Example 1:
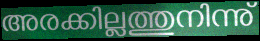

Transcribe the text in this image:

അരക്കില്ലത്തുനിന്നു്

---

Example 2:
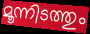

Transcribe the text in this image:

മൂന്നിടത്തും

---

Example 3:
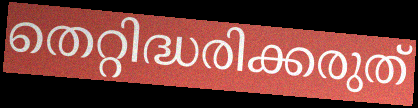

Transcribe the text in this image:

തെറ്റിദ്ധരിക്കരുത്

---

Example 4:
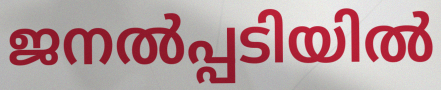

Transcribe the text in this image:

ജനൽപ്പടിയിൽ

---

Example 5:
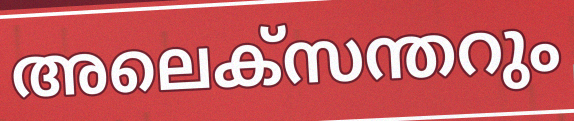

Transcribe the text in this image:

അലെക്സന്തറും